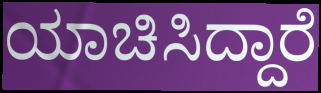
ಯಾಚಿಸಿದ್ದಾರೆ